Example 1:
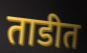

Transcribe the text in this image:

ताडीत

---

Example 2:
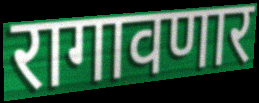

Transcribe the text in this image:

रागावणार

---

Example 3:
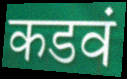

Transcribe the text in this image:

कडवं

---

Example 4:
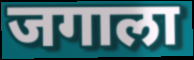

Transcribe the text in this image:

जगाला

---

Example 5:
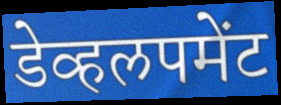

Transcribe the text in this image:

डेव्हलपमेंट